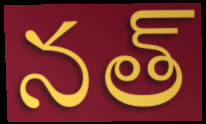
నత్